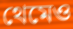
থেমেও